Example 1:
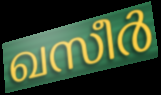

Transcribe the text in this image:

ഖസീർ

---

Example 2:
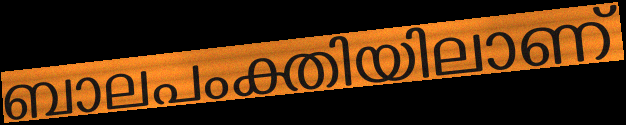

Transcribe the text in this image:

ബാലപംക്തിയിലാണ്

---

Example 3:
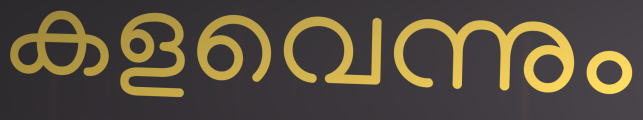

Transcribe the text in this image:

കളവെന്നും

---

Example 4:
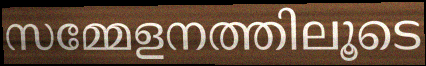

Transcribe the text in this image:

സമ്മേളനത്തിലൂടെ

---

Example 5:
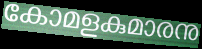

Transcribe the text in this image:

കോമളകുമാരനു